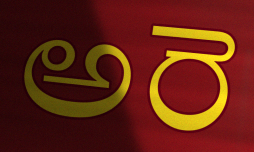
అరె